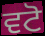
ਵਟੋ